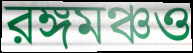
রঙ্গমঞ্চও